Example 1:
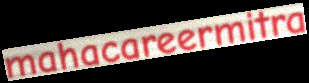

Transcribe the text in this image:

mahacareermitra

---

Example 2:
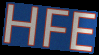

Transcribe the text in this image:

HFE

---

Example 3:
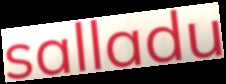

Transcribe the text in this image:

salladu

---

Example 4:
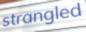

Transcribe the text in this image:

strangled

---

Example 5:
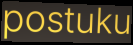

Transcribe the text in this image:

postuku